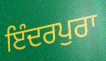
ਇੰਦਰਪੁਰਾ